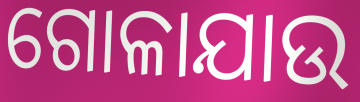
ଗୋଳାଯାଉ